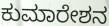
ಕುಮಾರೇಶನ